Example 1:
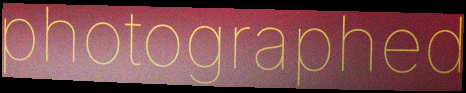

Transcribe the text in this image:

photographed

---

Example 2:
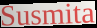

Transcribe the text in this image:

Susmita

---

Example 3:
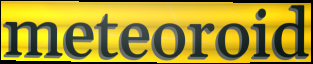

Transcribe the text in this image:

meteoroid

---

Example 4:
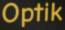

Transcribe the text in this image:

Optik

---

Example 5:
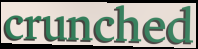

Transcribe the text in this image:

crunched